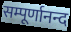
सम्पूर्णानन्द